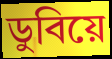
ডুবিয়ে